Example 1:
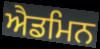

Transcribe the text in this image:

ਐਡਮਿਨ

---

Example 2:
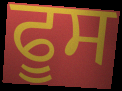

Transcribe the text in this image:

ਫੂਸ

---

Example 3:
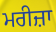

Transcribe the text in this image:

ਮਰੀਜ਼ਾ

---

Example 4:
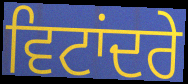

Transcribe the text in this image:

ਵਿਟਾਂਦਰੇ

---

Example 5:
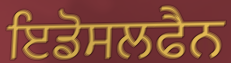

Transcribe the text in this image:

ਇਡੋਸਲਫੈਨ